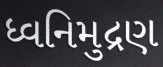
ધ્વનિમુદ્રણ